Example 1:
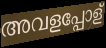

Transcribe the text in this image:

അവളപ്പോള്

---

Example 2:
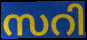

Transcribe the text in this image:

സറി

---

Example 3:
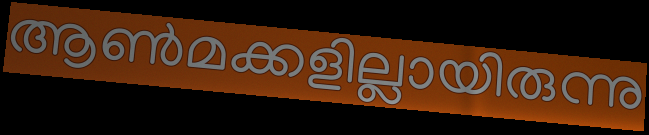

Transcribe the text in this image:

ആൺമക്കളില്ലായിരുന്നു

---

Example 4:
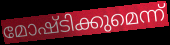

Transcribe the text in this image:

മോഷ്ടിക്കുമെന്ന്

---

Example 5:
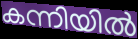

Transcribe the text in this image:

കന്നിയിൽ